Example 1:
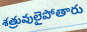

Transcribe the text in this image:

శత్రువులైపోతారు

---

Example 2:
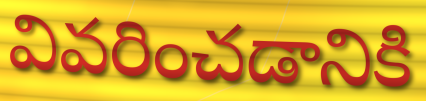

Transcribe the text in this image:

వివరించడానికి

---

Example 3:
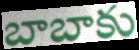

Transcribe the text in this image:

బాబాకు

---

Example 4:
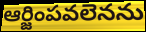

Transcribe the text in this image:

ఆర్జింపవలెనను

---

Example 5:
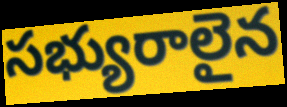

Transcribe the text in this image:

సభ్యురాలైన